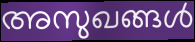
അസുഖങ്ങൾ